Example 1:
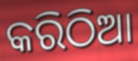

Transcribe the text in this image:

କରିଠିଆ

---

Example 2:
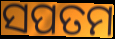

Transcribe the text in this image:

ସପତମ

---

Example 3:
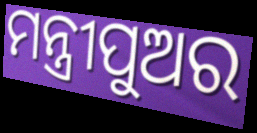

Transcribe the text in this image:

ମନ୍ତ୍ରୀପୁଅର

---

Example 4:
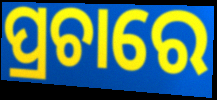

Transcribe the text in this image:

ପ୍ରଚାରେ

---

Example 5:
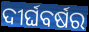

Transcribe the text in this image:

ଦୀର୍ଘବର୍ଷର